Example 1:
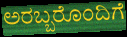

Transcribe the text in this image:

ಅರಬ್ಬರೊಂದಿಗೆ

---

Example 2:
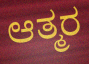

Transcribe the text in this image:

ಆತ್ಮರ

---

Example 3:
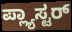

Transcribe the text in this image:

ಪ್ಲ್ಯಾಸ್ಟರ್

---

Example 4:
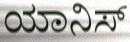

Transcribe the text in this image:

ಯಾನಿಸ್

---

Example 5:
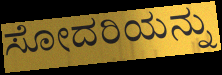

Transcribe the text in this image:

ಸೋದರಿಯನ್ನು